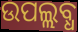
ଉପଲ୍ଲବ୍ଧ